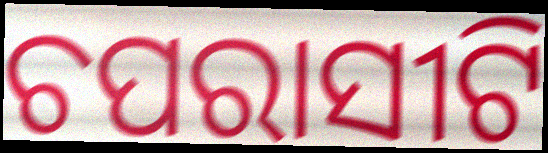
ଚପରାସୀଟି